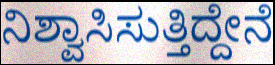
ನಿಶ್ವಾಸಿಸುತ್ತಿದ್ದೇನೆ